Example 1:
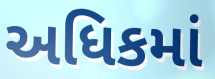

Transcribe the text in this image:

અધિકમાં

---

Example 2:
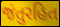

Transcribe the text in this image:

જંતુરહિત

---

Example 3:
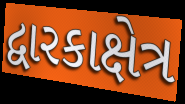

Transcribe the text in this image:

દ્વારકાક્ષેત્ર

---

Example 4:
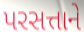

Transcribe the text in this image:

પરસત્તાને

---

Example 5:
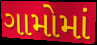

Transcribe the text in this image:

ગામોમાં